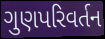
ગુણપરિવર્તન